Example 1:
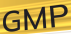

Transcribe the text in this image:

GMP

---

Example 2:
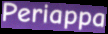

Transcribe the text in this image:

Periappa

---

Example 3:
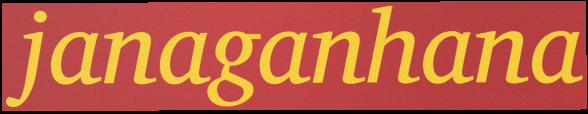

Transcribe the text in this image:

janaganhana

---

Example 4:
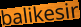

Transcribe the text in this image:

balikesir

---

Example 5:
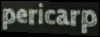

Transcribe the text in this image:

pericarp